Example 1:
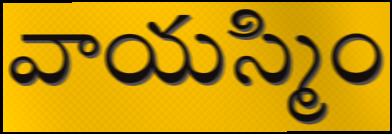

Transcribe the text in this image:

వాయస్మిం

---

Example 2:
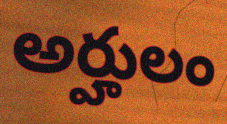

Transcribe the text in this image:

అర్హులం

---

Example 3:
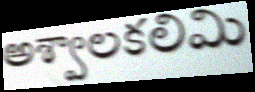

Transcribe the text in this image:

అశ్వాలకలిమి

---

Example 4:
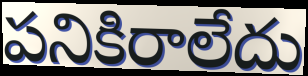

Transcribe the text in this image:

పనికిరాలేదు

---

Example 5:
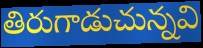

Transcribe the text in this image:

తిరుగాడుచున్నవి